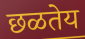
छळतेय